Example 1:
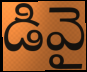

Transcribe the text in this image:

డివై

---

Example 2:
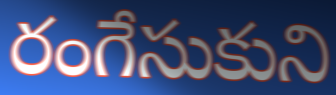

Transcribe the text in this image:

రంగేసుకుని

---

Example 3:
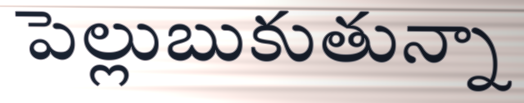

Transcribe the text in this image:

పెల్లుబుకుతున్నా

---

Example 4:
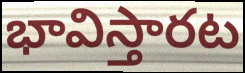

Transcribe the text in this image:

భావిస్తారట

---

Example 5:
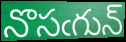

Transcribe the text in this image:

నొసఁగున్